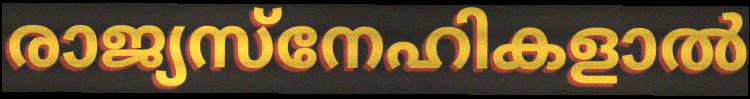
രാജ്യസ്നേഹികളാൽ